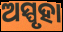
ଅସ୍ପୃହା